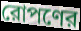
রোপণের